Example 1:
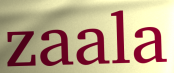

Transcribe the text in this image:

zaala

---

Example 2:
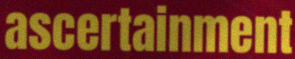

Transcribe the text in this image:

ascertainment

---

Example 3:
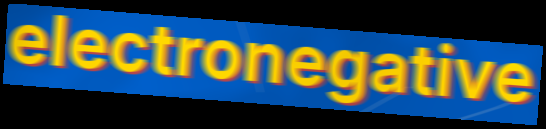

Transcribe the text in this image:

electronegative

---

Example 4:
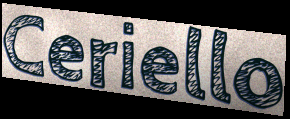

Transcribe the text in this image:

Ceriello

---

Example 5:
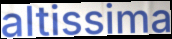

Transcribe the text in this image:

altissima